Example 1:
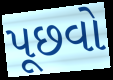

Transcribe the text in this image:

પૂછવો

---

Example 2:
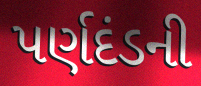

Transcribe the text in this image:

પર્ણદંડની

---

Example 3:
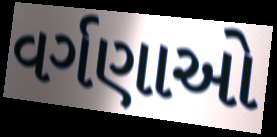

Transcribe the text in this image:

વર્ગણાઓ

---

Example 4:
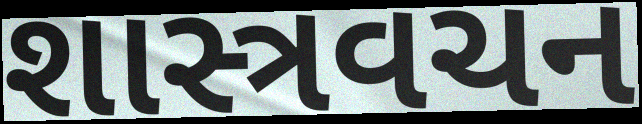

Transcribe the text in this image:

શાસ્ત્રવચન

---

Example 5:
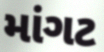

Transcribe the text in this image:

માંગટ